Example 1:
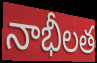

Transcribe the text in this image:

నాభీలత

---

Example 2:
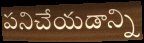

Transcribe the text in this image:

పనిచేయడాన్ని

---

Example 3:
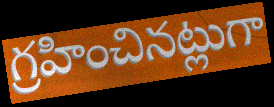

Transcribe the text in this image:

గ్రహించినట్లుగా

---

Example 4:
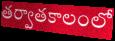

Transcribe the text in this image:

తర్వాతకాలంలో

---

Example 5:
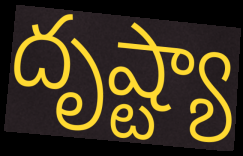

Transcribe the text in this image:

దృష్ట్యా